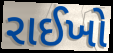
રાઈખો